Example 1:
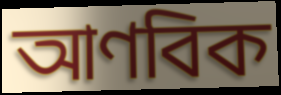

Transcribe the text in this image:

আণবিক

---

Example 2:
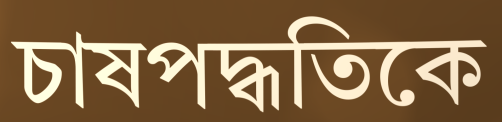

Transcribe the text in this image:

চাষপদ্ধতিকে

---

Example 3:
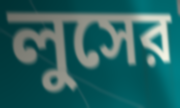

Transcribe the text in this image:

লুসের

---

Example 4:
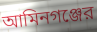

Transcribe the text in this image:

আমিনগঞ্জের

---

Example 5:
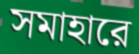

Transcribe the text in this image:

সমাহারে